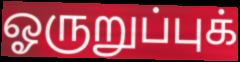
ஓருறுப்புக்